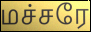
மச்சரே